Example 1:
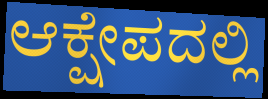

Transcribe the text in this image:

ಆಕ್ಷೇಪದಲ್ಲಿ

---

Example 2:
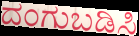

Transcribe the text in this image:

ದಂಗುಬಡಿಸಿ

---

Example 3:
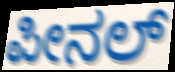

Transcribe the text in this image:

ಪೀನಲ್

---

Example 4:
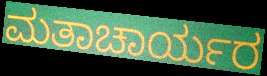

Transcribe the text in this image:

ಮತಾಚಾರ್ಯರ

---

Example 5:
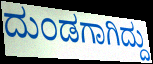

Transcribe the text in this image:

ದುಂಡಗಾಗಿದ್ದು